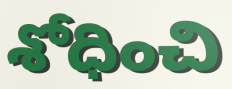
శోధించి